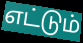
எட்டும்